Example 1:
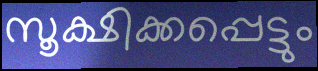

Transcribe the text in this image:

സൂക്ഷിക്കപ്പെട്ടും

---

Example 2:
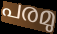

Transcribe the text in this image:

പരമു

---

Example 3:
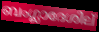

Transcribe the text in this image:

ബംഗ്ലാദേശില്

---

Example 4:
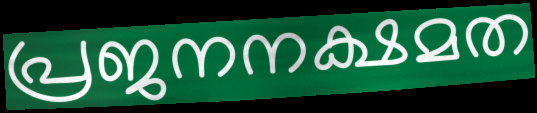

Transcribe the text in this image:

പ്രജനനക്ഷമത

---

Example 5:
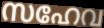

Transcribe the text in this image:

സഹേവ